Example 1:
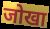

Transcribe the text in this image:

जोखा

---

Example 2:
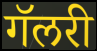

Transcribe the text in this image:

गॅलरी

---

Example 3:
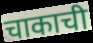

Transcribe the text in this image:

चाकाची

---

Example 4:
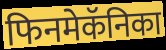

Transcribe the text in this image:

फिनमेकॅनिका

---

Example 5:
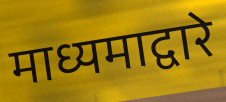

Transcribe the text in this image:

माध्यमाद्वारे